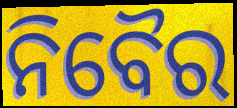
ନିବୈର